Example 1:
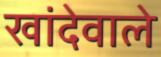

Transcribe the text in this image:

खांदेवाले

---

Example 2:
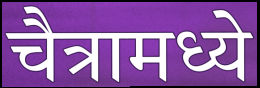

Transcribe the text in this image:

चैत्रामध्ये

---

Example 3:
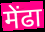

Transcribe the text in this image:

मेंढा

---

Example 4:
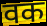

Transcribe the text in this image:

वक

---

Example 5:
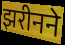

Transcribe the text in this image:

झरीनने